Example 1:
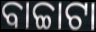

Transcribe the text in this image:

ବାଚ୍ଚାଟା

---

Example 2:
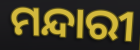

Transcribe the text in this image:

ମନ୍ଦାରୀ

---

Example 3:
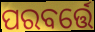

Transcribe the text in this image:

ପରବର୍ତ୍ତେ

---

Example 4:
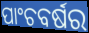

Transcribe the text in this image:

ପାଂଚବର୍ଷର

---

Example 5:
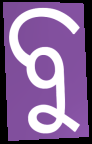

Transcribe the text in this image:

ବୁ